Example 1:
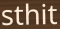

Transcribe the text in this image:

sthit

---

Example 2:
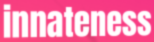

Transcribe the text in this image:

innateness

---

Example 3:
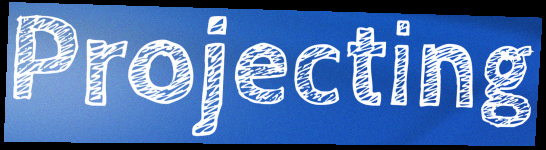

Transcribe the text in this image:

Projecting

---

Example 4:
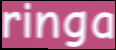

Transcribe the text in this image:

ringa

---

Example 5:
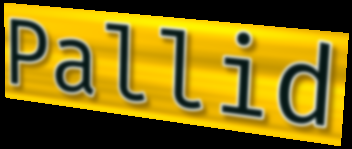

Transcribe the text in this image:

Pallid